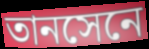
তানসেনে